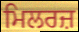
ਮਿਲਰਜ਼